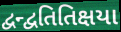
દ્વન્દ્વતિતિક્ષયા